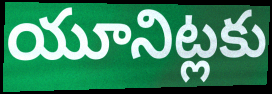
యూనిట్లకు